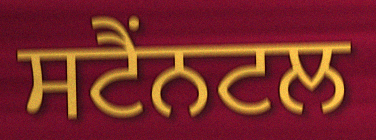
ਸਟੈਂਨਟਲ